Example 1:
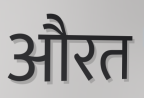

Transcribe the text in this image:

औरत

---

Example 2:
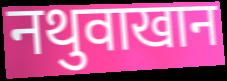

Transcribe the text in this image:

नथुवाखान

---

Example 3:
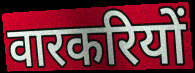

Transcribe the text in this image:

वारकरियों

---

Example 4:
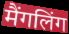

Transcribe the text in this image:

मैंगलिंग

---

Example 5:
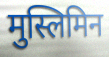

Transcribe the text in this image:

मुस्लिमिन